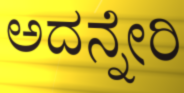
ಅದನ್ನೇರಿ